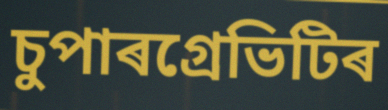
চুপাৰগ্ৰেভিটিৰ